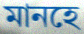
মানহে